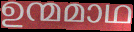
ഉന്മമാഥ